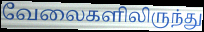
வேலைகளிலிருந்து